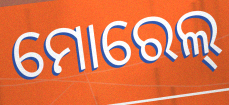
ମୋରେଲ୍